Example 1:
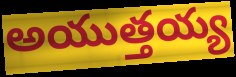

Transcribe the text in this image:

అయుత్తయ్య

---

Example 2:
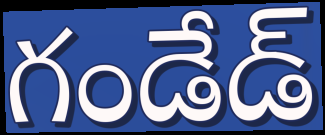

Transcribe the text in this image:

గండేడ్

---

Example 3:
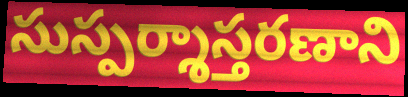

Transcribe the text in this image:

సుస్పర్శాస్తరణాని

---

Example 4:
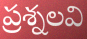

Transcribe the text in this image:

ప్రశ్నలవి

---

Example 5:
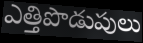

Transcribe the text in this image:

ఎత్తిపొడుపులు